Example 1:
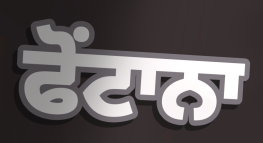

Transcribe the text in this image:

ਫੋਂਟਾਨਾ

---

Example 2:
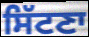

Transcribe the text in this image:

ਸਿੱਟਣਾ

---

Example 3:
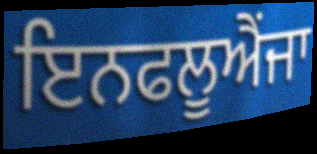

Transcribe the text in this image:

ਇਨਫਲੂਐਂਜਾ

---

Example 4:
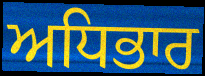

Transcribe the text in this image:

ਅਧਿਭਾਰ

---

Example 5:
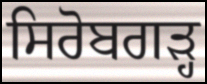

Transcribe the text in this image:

ਸਿਰੋਬਗੜ੍ਹ